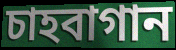
চাহবাগান